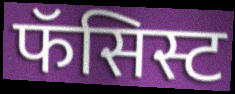
फॅसिस्ट